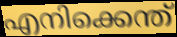
എനിക്കെന്ത്